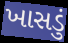
ખાસડું